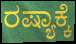
ರಷ್ಯಾಕ್ಕೆ